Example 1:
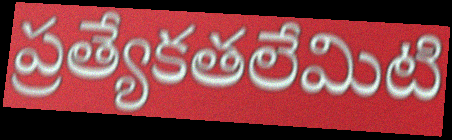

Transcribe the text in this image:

ప్రత్యేకతలేమిటి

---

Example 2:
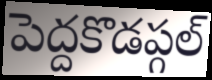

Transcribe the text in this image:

పెద్దకొడప్గల్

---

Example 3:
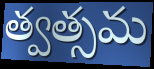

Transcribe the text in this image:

త్వత్సమ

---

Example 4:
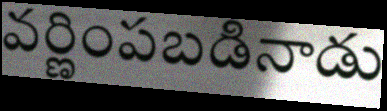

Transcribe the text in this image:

వర్ణింపబడినాడు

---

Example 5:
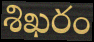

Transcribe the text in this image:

శిఖరం